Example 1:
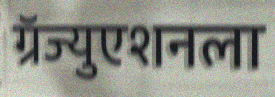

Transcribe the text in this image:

ग्रॅज्युएशनला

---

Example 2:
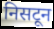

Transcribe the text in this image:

निसटून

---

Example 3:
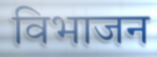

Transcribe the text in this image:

विभाजन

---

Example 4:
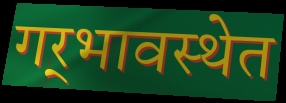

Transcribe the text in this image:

गर्भावस्थेत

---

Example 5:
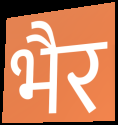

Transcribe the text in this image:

भैर